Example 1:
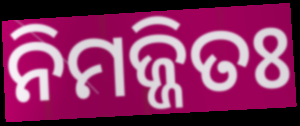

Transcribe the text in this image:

ନିମଜ୍ଜିତଃ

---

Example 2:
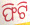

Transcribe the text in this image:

ଫିଟି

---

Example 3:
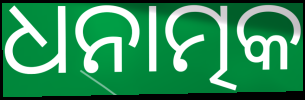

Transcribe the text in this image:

ଧନାତ୍ମକ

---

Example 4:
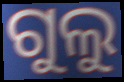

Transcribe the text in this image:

ଗୁଲୁ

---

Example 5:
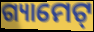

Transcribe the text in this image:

ଗ୍ୟାମେଟ୍